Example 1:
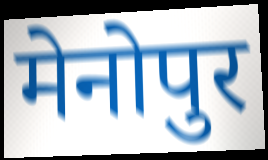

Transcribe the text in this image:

मेनोपुर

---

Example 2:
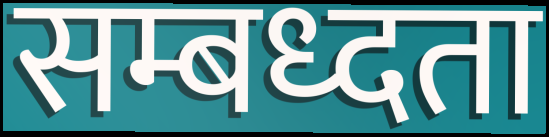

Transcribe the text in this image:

सम्बध्दता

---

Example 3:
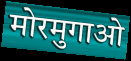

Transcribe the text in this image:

मोरमुगाओ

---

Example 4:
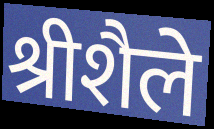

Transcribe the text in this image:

श्रीशैले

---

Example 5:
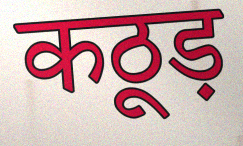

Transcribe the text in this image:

कठूड़